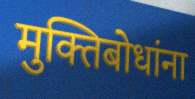
मुक्तिबोधांना